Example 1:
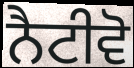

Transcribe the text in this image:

ਨੈਟੀਵੋ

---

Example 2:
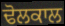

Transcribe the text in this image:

ਢੋਲਕਾਲ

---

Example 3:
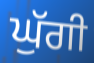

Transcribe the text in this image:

ਘੁੱਗੀ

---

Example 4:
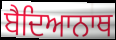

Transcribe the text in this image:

ਬੈਦਿਆਨਾਥ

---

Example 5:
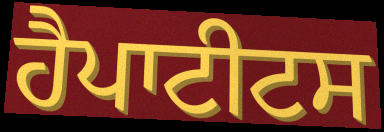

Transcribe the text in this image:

ਹੈਪਾਟੀਟਸ